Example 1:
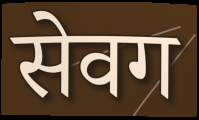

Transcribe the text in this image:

सेवग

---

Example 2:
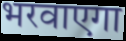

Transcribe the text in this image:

भरवाएगा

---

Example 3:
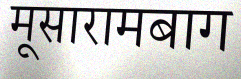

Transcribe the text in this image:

मूसारामबाग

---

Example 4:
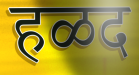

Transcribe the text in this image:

हळद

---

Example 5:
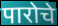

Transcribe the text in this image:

पारोचे